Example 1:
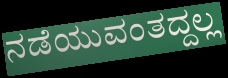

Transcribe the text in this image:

ನಡೆಯುವಂತದ್ದಲ್ಲ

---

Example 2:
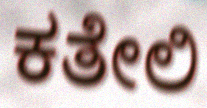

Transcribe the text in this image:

ಕತೇಲಿ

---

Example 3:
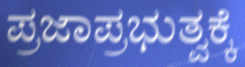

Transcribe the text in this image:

ಪ್ರಜಾಪ್ರಭುತ್ವಕ್ಕೆ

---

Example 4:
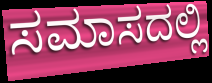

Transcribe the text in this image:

ಸಮಾಸದಲ್ಲಿ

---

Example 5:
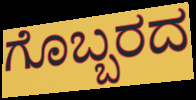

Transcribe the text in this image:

ಗೊಬ್ಬರದ